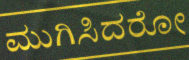
ಮುಗಿಸಿದರೋ